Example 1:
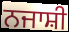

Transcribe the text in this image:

ਨਜਾਸ਼ੀ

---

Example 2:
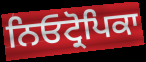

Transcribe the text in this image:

ਨਿਓਟ੍ਰੋਪਿਕਾ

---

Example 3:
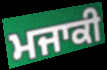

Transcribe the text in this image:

ਮਜਾਕੀ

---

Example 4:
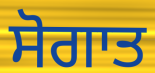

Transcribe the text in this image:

ਸੋਗਾਤ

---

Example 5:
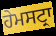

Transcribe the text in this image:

ਹੇਮਸਟ੍ਰਾ